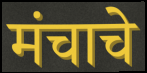
मंचाचे